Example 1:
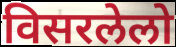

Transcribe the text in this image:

विसरलेलो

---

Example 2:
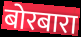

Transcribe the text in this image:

बोरबारा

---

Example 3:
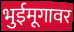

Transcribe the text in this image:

भुईमूगावर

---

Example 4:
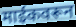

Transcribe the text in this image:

माईकवरून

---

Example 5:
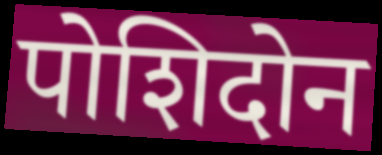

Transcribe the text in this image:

पोशिदोन